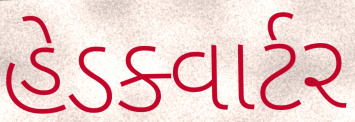
હેડક્વાર્ટર